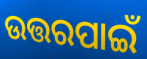
ଉତ୍ତରପାଇଁ